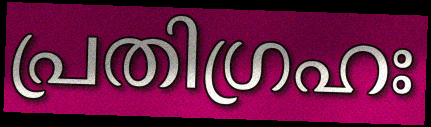
പ്രതിഗ്രഹഃ